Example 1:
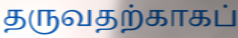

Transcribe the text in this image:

தருவதற்காகப்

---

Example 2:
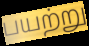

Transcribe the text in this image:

பயற்று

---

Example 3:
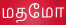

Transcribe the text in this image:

மதமோ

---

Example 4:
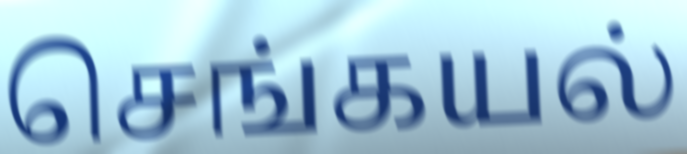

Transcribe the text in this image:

செங்கயல்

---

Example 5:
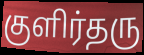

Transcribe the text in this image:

குளிர்தரு